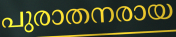
പുരാതനരായ